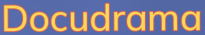
Docudrama